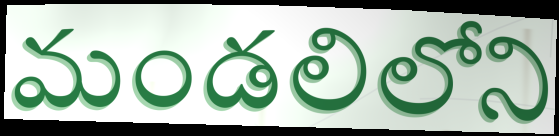
మండలిలోని